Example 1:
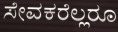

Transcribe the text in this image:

ಸೇವಕರೆಲ್ಲರೂ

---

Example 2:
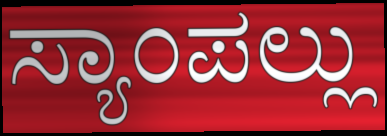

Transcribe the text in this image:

ಸ್ಯಾಂಪಲ್ಲು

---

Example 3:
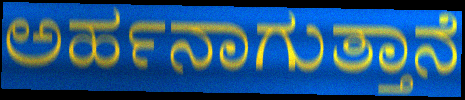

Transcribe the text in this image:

ಅರ್ಹನಾಗುತ್ತಾನೆ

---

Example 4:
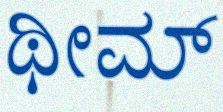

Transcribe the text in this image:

ಥೀಮ್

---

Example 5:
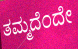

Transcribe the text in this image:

ತಮ್ಮದೆಂದೇ